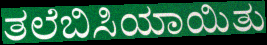
ತಲೆಬಿಸಿಯಾಯಿತು